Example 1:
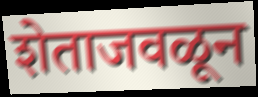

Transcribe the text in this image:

शेताजवळून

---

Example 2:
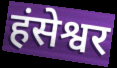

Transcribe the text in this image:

हंसेश्वर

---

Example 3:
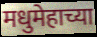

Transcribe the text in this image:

मधुमेहाच्या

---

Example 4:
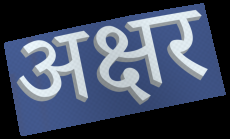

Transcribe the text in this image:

अक्षर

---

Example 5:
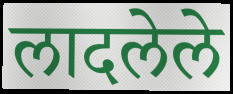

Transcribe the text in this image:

लादलेले